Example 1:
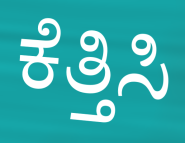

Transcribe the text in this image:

ಕೆತ್ತಿಸಿ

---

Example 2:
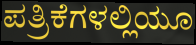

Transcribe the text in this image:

ಪತ್ರಿಕೆಗಳಲ್ಲಿಯೂ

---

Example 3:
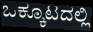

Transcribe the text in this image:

ಒಕ್ಕೂಟದಲ್ಲಿ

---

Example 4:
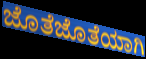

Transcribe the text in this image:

ಜೊತೆಜೊತೆಯಾಗಿ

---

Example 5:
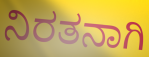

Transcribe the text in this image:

ನಿರತನಾಗಿ